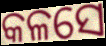
କଳସେ